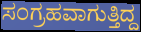
ಸಂಗ್ರಹವಾಗುತ್ತಿದ್ದ